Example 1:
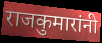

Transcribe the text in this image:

राजकुमारांनी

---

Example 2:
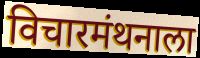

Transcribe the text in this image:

विचारमंथनाला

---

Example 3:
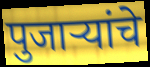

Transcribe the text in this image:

पुजाऱ्यांचे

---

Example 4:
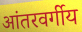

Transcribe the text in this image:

आंतरवर्गीय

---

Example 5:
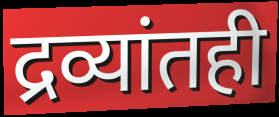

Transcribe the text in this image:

द्रव्यांतही